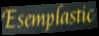
Esemplastic